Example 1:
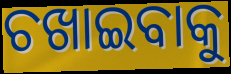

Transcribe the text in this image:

ଚଖାଇବାକୁ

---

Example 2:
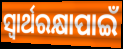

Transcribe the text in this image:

ସ୍ବାର୍ଥରକ୍ଷାପାଇଁ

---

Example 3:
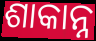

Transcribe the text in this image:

ଶାକାନ୍ନ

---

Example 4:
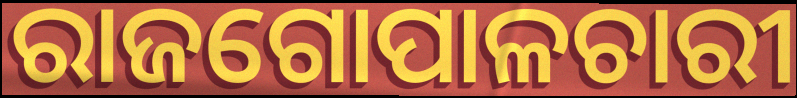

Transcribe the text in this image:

ରାଜଗୋପାଳଚାରୀ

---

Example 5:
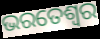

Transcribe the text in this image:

ଭରତେଶ୍ଵର